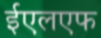
ईएलएफ